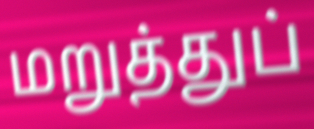
மறுத்துப்